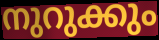
നുറുക്കും